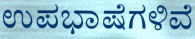
ಉಪಭಾಷೆಗಳಿವೆ